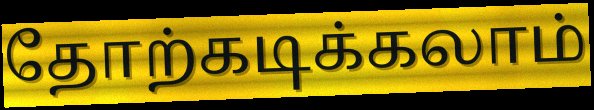
தோற்கடிக்கலாம்